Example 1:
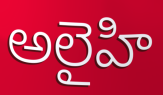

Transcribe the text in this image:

అలైహి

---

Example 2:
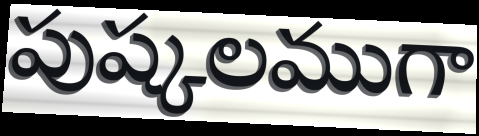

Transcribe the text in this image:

పుష్కలముగా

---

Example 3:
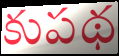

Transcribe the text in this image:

కుపథ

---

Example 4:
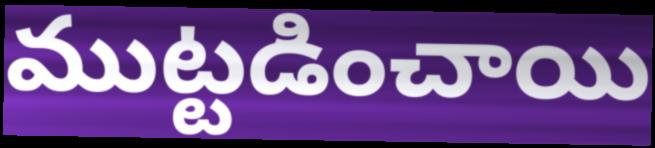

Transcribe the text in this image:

ముట్టడించాయి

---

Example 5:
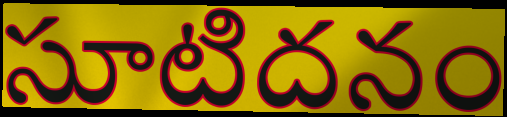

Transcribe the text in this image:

సూటిదనం